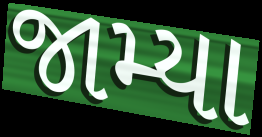
જામ્યા